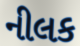
નીલક